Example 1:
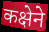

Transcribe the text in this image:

कक्षेने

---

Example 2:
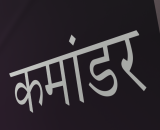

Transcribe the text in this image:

कमांडर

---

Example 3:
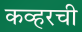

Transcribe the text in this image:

कव्हरची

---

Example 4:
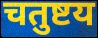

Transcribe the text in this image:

चतुष्टय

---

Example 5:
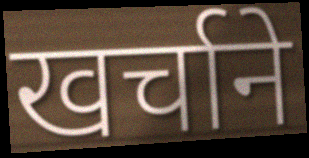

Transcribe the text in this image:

खर्चाने